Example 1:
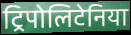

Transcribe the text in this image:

ट्रिपोलिटेनिया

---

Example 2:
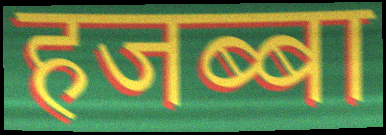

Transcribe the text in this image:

हजब्बा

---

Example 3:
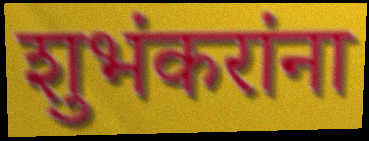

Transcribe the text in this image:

शुभंकरांना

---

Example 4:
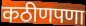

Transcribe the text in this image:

कठीणपणा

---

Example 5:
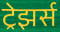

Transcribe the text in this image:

ट्रेझर्स